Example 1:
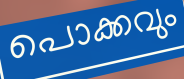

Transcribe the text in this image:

പൊക്കവും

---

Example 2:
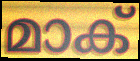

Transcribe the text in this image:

മാക്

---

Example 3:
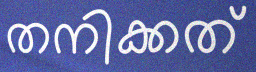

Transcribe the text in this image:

തനിക്കത്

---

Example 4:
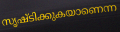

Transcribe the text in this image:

സൃഷ്ടിക്കുകയാണെന്ന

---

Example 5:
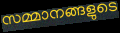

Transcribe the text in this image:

സമ്മാനങ്ങളുടെ